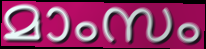
മാംസം